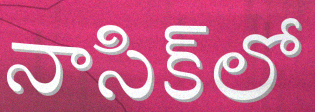
నాసిక్‌లో